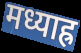
मध्याह्र